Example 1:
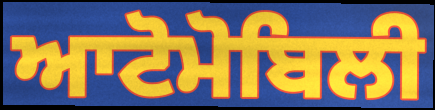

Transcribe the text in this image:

ਆਟੋਮੋਬਿਲੀ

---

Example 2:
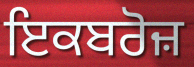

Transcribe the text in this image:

ਇਕਬਰੋਜ਼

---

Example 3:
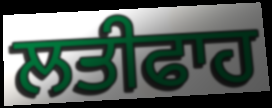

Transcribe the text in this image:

ਲਤੀਫਾਹ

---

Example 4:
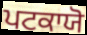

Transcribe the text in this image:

ਪਟਕਾਯੋ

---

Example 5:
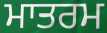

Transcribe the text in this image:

ਮਾਤਰਮ